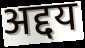
अद्दय